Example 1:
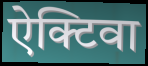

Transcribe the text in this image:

ऐक्टिवा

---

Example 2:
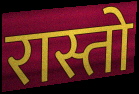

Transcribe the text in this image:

रास्तो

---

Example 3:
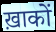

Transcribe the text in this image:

ख़ाकों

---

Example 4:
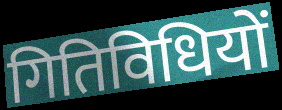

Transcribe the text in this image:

गितिविधियों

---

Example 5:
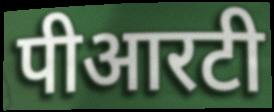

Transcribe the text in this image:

पीआरटी